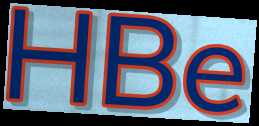
HBe